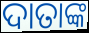
ଦାତାଙ୍କ